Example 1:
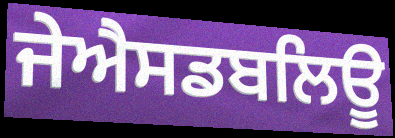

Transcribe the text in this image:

ਜੇਐਸਡਬਲਿਊ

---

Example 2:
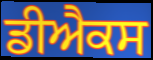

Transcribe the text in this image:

ਡੀਐਕਸ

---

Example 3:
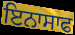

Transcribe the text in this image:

ਇਨਾਸਾਫ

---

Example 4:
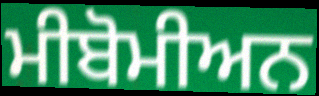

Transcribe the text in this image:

ਮੀਬੋਮੀਅਨ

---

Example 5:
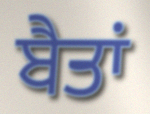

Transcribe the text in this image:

ਬੈਤਾਂ